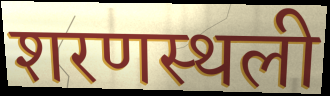
शरणस्थली